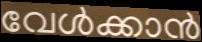
വേൾക്കാൻ